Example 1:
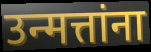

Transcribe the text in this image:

उन्मत्तांना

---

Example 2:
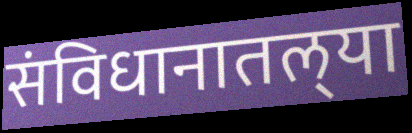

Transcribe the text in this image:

संविधानातल्या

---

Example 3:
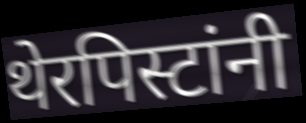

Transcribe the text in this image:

थेरपिस्टांनी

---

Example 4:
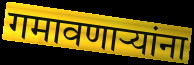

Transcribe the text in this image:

गमावणाऱ्यांना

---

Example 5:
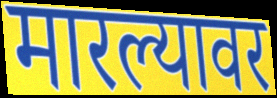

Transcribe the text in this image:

मारल्यावर